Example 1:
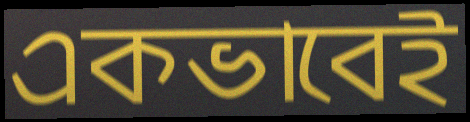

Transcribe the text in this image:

একভাবেই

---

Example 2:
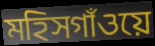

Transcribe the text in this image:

মহিসগাঁওয়ে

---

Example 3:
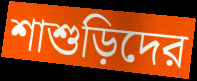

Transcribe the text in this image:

শাশুড়িদের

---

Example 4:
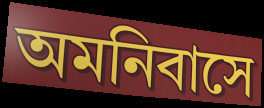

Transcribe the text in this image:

অমনিবাসে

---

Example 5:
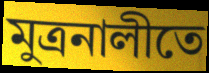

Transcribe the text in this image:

মুত্রনালীতে